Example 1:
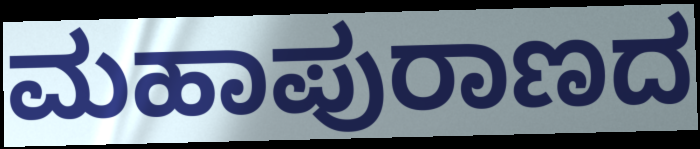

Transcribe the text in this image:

ಮಹಾಪುರಾಣದ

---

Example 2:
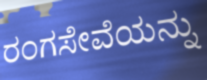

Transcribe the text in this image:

ರಂಗಸೇವೆಯನ್ನು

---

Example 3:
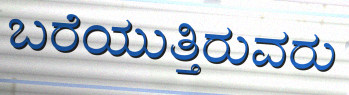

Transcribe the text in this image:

ಬರೆಯುತ್ತಿರುವರು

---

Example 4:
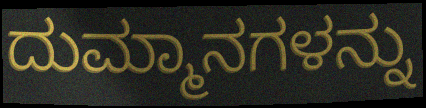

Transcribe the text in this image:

ದುಮ್ಮಾನಗಳನ್ನು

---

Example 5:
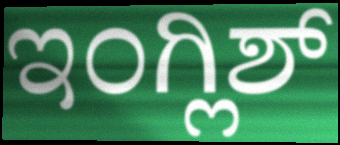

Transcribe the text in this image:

ಇಂಗ್ಲಿಶ್